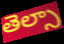
తెల్సా